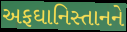
અફઘાનિસ્તાનને